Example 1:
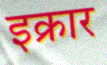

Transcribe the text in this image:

इक्रार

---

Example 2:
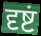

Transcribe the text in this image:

दृष्टं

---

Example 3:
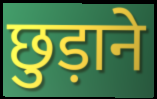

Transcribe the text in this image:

छुड़ाने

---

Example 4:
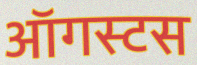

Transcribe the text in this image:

ऑगस्टस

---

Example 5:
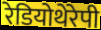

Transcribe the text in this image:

रेडियोथेरेपी